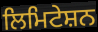
ਲਿਮਿਟੇਸ਼ਨ